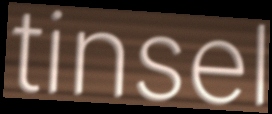
tinsel